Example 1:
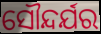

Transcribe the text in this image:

ସୌନ୍ଦର୍ଯର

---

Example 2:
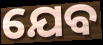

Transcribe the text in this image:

ଯେବ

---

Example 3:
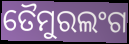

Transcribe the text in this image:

ତୈମୁରଲଂଗ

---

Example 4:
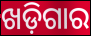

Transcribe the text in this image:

ଖଡ଼ିଗାର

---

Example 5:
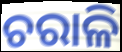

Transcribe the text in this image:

ଚରାଳି